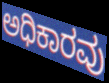
ಅಧಿಕಾರವು